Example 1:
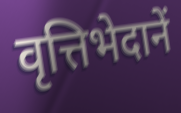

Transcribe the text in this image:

वृत्तिभेदानें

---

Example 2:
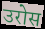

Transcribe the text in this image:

उरोस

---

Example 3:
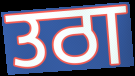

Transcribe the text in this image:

उठा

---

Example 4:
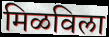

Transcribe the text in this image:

मिळविला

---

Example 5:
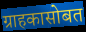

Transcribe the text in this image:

ग्राहकासोबत